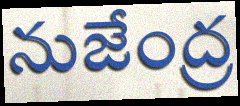
నుజేంద్ర